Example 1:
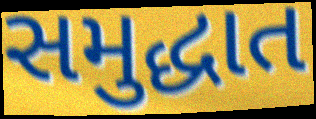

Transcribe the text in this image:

સમુદ્ધાત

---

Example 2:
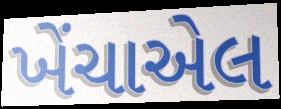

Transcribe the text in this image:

ખેંચાએલ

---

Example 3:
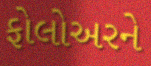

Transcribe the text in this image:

ફોલોઅરને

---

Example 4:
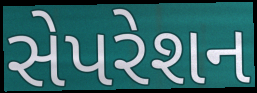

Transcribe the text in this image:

સેપરેશન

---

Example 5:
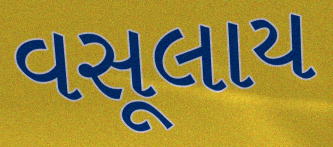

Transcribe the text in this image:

વસૂલાય